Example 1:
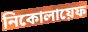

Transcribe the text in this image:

নিকোলায়েফ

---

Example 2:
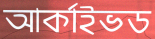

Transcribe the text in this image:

আর্কাইভড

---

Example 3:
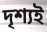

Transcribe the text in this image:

দৃশ্যই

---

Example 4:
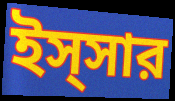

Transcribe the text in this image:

ইস্সার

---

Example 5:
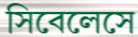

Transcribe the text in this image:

সিবেলেসে